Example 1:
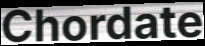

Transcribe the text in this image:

Chordate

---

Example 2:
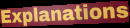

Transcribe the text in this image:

Explanations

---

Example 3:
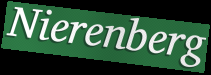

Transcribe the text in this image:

Nierenberg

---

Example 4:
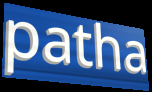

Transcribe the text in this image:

patha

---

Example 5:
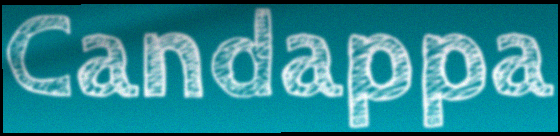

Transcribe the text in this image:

Candappa